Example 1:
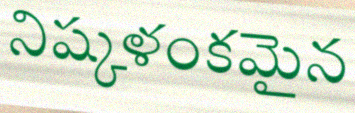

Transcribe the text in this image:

నిష్కళంకమైన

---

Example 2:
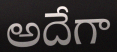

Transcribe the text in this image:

అదేగా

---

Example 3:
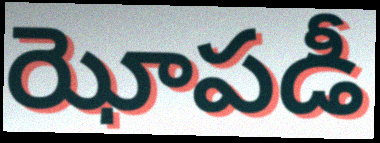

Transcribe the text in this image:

ఝోపడీ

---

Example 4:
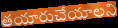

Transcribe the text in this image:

తయారుచేయాలని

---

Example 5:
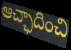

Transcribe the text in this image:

ఆచ్ఛాదించి